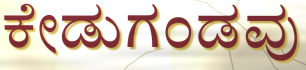
ಕೇಡುಗಂಡವು